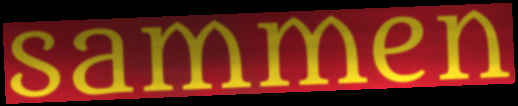
sammen